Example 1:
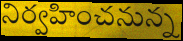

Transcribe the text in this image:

నిర్వహించనున్న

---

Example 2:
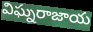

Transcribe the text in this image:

విఘ్నరాజాయ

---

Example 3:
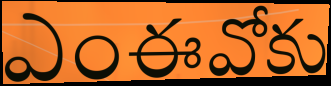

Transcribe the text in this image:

ఎంఈవోకు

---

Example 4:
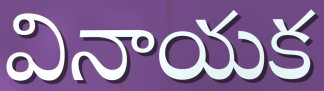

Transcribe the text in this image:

వినాయక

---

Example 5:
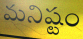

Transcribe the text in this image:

మనిష్టం